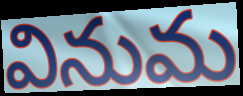
వినుమ